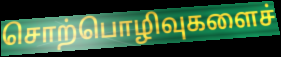
சொற்பொழிவுகளைச்